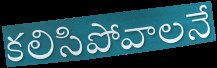
కలిసిపోవాలనే